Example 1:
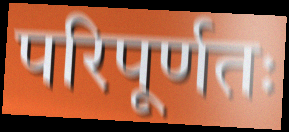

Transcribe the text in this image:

परिपूर्णतः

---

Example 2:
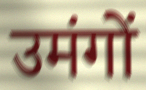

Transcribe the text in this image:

उमंगों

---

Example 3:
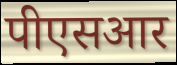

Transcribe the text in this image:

पीएसआर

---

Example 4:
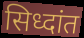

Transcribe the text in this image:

सिध्दांत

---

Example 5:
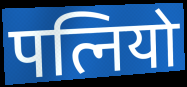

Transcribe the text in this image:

पत्नियो